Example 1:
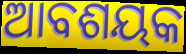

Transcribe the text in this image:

ଆବଶୟକ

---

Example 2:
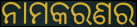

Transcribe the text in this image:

ନାମକରଣର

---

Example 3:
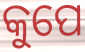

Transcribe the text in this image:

କୁପେ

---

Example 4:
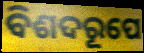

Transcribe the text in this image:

ବିଶଦରୂପେ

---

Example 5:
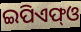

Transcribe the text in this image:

ଇପିଏଫ୍ଓ